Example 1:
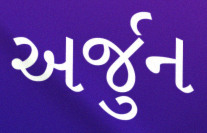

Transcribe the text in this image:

અર્જુન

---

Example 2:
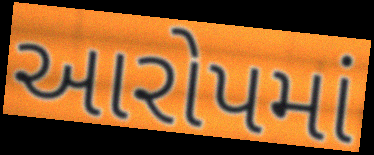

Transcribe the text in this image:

આરોપમાં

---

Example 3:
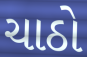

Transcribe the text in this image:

ચાઠો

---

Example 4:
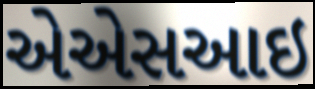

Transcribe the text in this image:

એએસઆઇ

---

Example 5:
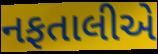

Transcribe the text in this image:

નફતાલીએ